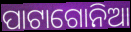
ପାଟାଗୋନିଆ